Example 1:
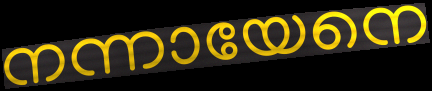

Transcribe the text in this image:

നന്നായേനെ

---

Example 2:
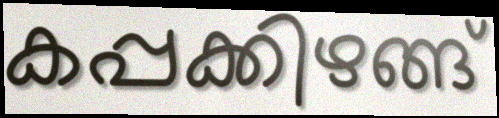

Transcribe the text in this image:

കപ്പക്കിഴങ്ങ്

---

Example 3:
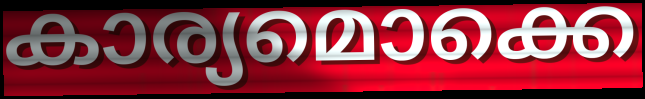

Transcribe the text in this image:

കാര്യമൊക്കെ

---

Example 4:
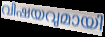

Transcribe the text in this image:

വിഷയവുമായി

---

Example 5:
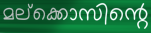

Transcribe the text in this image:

മല്ക്കൊസിന്റെ